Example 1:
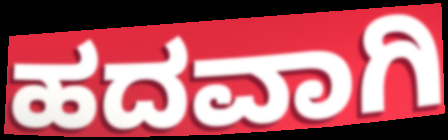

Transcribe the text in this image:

ಹದವಾಗಿ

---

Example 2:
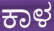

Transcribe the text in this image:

ಕಾಳ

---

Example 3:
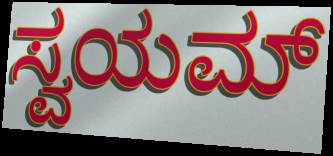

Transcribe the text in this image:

ಸ್ವಯಮ್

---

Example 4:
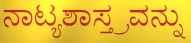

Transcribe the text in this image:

ನಾಟ್ಯಶಾಸ್ತ್ರವನ್ನು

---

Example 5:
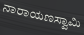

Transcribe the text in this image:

ನಾರಾಯಣಸ್ವಾಮಿ